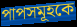
পাপসমূহকে